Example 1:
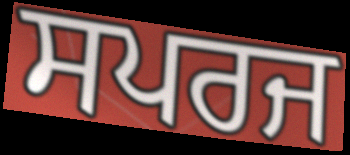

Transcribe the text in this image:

ਸਪਰਜ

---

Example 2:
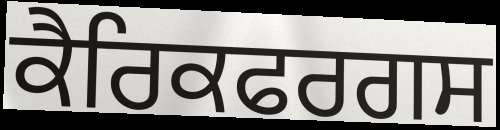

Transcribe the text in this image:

ਕੈਰਿਕਫਰਗਸ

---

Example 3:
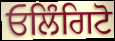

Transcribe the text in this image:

ਓਲਿੰਗਿਟੋ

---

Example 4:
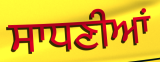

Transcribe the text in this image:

ਸਾਧਣੀਆਂ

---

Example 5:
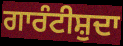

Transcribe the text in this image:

ਗਾਰੰਟੀਸ਼ੁਦਾ